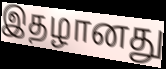
இதழானது